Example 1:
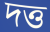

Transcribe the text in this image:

দত্ত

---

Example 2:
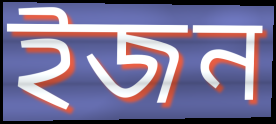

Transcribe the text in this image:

ইজন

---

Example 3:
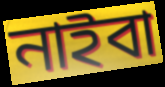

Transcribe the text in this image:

নাইবা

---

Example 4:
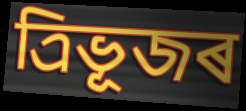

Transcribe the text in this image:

ত্ৰিভূজৰ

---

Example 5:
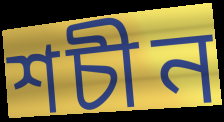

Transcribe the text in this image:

শচীন